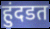
हुंदडत